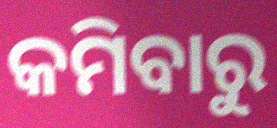
କମିବାରୁ